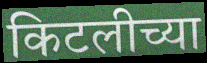
किटलीच्या